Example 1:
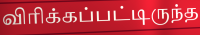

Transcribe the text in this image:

விரிக்கப்பட்டிருந்த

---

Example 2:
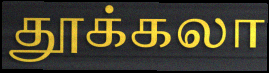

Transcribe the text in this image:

தூக்கலா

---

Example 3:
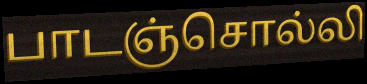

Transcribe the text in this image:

பாடஞ்சொல்லி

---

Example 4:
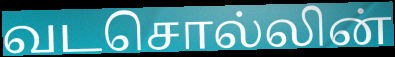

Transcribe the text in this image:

வடசொல்லின்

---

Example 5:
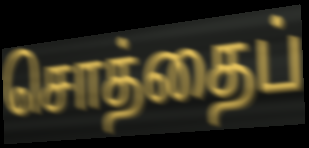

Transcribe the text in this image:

சொத்தைப்